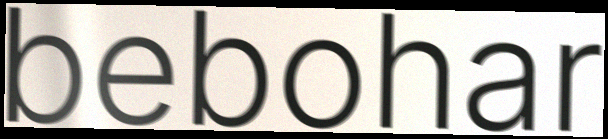
bebohar